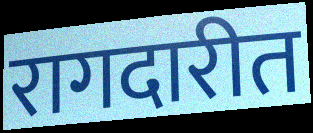
रागदारीत